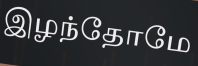
இழந்தோமே